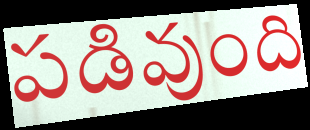
పడివుంది